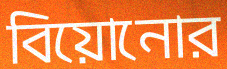
বিয়োনোর